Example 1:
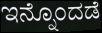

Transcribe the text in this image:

ಇನ್ನೊಂದಡೆ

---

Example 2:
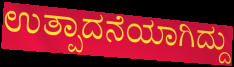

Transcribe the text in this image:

ಉತ್ಪಾದನೆಯಾಗಿದ್ದು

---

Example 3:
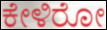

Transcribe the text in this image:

ಕೇಳಿರೋ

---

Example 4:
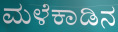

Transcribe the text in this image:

ಮಳೆಕಾಡಿನ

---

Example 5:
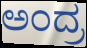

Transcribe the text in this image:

ಅಂದ್ರ